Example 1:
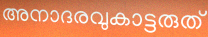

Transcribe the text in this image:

അനാദരവുകാട്ടരുത്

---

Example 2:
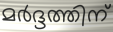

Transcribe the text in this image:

മർദ്ദത്തിന്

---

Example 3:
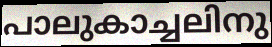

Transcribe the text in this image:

പാലുകാച്ചലിനു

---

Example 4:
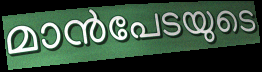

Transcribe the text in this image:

മാൻപേടയുടെ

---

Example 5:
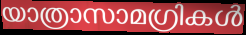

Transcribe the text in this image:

യാത്രാസാമഗ്രികൾ